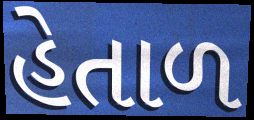
હેતાળ